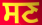
ਸਣ